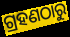
ଗ୍ରହଣଠାରୁ